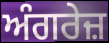
ਅੰਗਰੇਜ਼